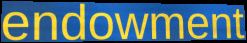
endowment